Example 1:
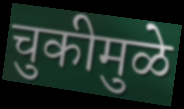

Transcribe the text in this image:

चुकीमुळे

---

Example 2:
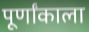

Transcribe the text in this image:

पूर्णांकाला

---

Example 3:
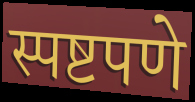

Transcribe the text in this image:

स्पष्टपणे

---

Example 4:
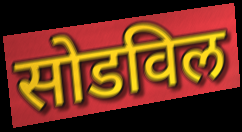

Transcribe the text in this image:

सोडविल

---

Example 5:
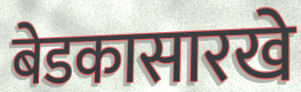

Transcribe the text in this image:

बेडकासारखे